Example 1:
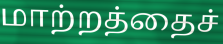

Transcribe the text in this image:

மாற்றத்தைச்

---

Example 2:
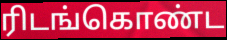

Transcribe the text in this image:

ரிடங்கொண்ட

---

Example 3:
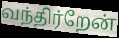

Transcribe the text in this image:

வந்திர்றேன்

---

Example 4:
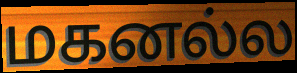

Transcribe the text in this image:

மகனல்ல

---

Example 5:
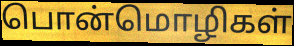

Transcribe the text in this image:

பொன்மொழிகள்